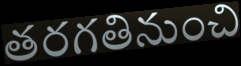
తరగతినుంచి